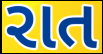
રાત